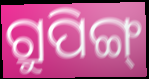
ଗ୍ରୁପିଙ୍ଗ୍